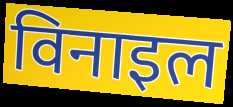
विनाइल